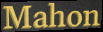
Mahon